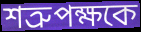
শত্রুপক্ষকে